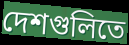
দেশগুলিতে